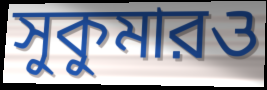
সুকুমারও